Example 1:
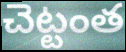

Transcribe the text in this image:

చెట్టంత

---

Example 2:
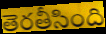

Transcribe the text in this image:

తెరతీసింది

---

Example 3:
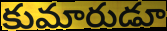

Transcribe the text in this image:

కుమారుడూ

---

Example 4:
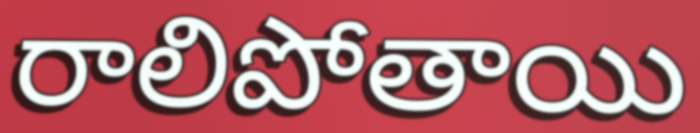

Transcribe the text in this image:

రాలిపోతాయి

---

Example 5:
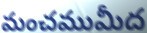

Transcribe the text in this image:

మంచముమీద